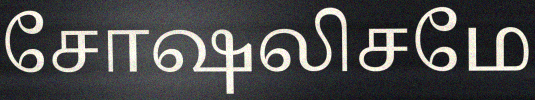
சோஷலிசமே